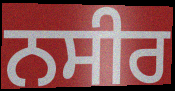
ਨਸੀਰ